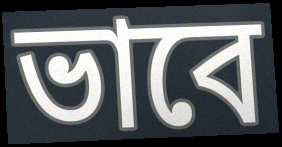
ভাবে